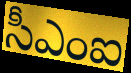
సీఎంఐ